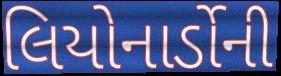
લિયોનાર્ડોની